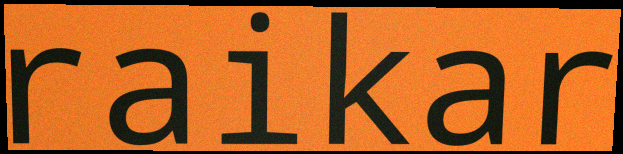
raikar